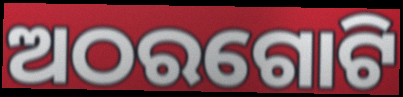
ଅଠରଗୋଟି